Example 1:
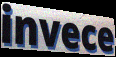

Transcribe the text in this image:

invece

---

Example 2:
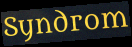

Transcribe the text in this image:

Syndrom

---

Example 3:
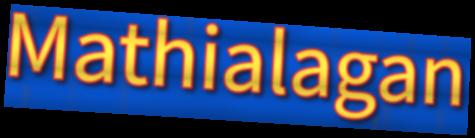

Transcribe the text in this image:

Mathialagan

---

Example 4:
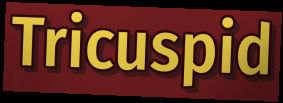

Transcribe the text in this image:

Tricuspid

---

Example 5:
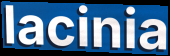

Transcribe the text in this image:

lacinia